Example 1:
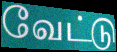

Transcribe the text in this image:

வேட்டு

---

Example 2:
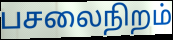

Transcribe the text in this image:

பசலைநிறம்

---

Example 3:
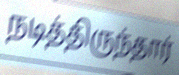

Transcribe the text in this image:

நடித்திருந்தார்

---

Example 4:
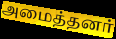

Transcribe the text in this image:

அமைத்தனர்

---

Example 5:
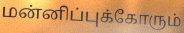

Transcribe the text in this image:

மன்னிப்புக்கோரும்